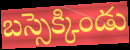
బస్సెక్కిండు